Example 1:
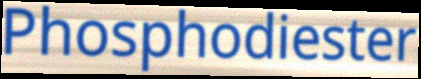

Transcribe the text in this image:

Phosphodiester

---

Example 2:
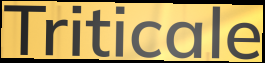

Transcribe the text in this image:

Triticale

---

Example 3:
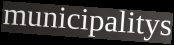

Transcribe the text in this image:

municipalitys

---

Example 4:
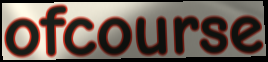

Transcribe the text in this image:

ofcourse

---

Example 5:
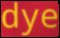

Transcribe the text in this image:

dye